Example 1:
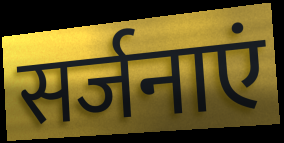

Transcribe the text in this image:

सर्जनाएं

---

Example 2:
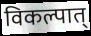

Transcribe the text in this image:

विकल्पात्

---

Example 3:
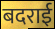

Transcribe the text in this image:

बदराई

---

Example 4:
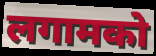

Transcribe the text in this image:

लगामको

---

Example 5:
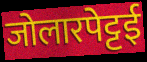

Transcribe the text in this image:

जोलारपेट्टई